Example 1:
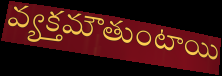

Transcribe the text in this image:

వ్యక్తమౌతుంటాయి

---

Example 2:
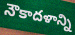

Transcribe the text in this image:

నౌకాదళాన్ని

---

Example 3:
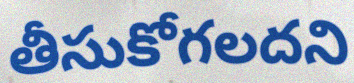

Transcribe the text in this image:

తీసుకోగలదని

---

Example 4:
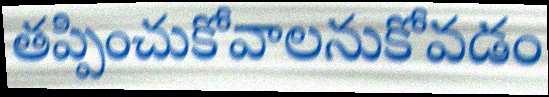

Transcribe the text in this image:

తప్పించుకోవాలనుకోవడం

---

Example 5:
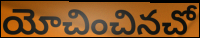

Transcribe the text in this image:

యోచించినచో